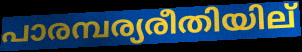
പാരമ്പര്യരീതിയില്